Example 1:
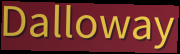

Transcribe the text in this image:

Dalloway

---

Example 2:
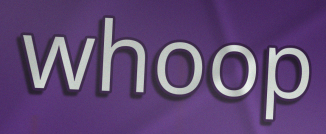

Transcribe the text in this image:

whoop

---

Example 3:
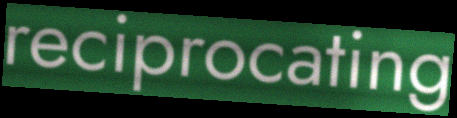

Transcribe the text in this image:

reciprocating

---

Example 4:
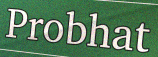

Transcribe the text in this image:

Probhat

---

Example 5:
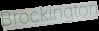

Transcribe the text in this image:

Brockington